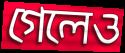
গেলেও